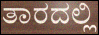
ತಾರದಲ್ಲಿ